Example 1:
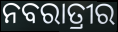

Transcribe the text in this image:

ନବରାତ୍ରୀର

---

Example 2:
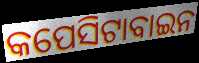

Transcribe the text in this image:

କପେସିଟାବାଇନ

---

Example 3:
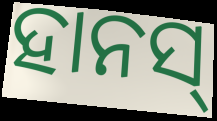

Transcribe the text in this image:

ହାନସ୍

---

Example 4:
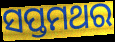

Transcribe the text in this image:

ସପ୍ତମଥର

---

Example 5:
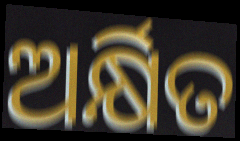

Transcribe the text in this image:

ଅର୍କ୍ଷିତ